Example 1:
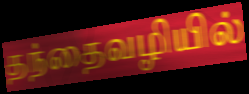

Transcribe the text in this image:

தந்தைவழியில்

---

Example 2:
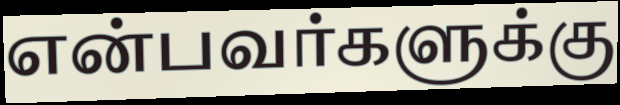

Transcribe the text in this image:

என்பவர்களுக்கு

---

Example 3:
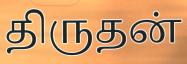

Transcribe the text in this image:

திருதன்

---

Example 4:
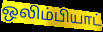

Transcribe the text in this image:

ஒலிம்பியாட்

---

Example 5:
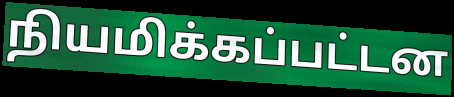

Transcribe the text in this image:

நியமிக்கப்பட்டன